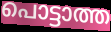
പൊട്ടാത്ത